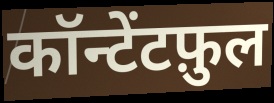
कॉन्टेंटफ़ुल